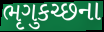
ભૃગુકચ્છના